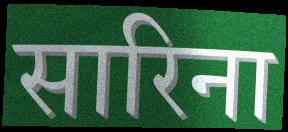
सारिना